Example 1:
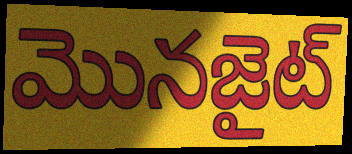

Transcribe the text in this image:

మొనజైట్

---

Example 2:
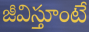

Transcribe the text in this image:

జీవిస్తూంటే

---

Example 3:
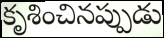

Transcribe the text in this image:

కృశించినప్పుడు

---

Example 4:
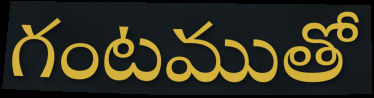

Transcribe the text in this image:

గంటముతో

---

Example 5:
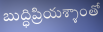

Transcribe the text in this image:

బుద్ధిప్రియశ్శాంతో